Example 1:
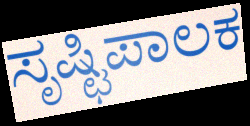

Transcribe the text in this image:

ಸೃಷ್ಟಿಪಾಲಕ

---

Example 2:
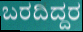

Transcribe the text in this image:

ಬರದಿದ್ದರ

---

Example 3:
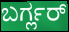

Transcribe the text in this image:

ಬರ್ಗ್ಲರ್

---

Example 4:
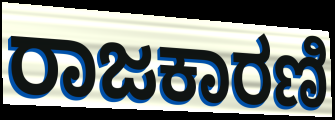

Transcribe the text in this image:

ರಾಜಕಾರಣಿ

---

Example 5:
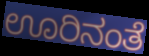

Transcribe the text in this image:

ಊರಿನಂತೆ